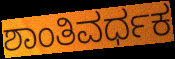
ಶಾಂತಿವರ್ಧಕ